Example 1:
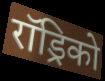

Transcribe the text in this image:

रॉड्रिको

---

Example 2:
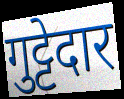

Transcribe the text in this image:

गुट्टेदार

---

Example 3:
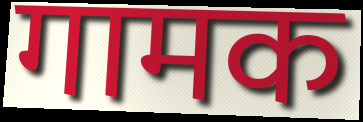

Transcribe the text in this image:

गामक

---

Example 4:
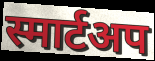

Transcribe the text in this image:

स्मार्टअप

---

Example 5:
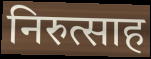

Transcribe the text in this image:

निरुत्साह